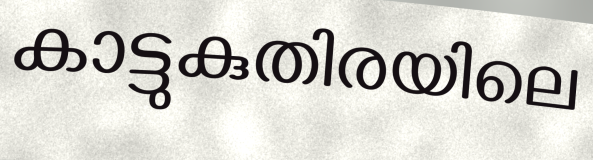
കാട്ടുകുതിരയിലെ